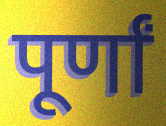
पूर्णां